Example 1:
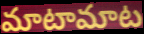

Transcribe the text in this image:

మాటామాట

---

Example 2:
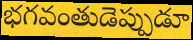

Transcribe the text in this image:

భగవంతుడెప్పుడూ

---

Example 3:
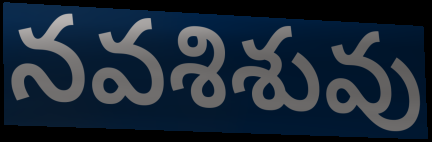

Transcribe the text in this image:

నవశిశువు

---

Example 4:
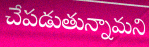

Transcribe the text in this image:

చేపడుతున్నామని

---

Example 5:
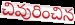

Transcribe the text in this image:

చివురించిన